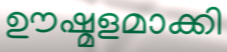
ഊഷ്മളമാക്കി